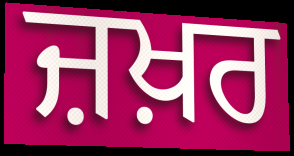
ਜ਼ਖ਼ਰ